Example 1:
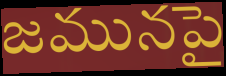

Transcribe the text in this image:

జమునపై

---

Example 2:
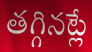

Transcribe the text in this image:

తగ్గినట్లే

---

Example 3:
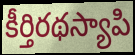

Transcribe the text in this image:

కీర్తిరథస్యాపి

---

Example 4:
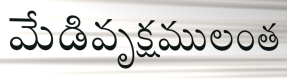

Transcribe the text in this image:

మేడివృక్షములంత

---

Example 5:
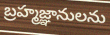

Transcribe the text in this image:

బ్రహ్మజ్ఞానులను